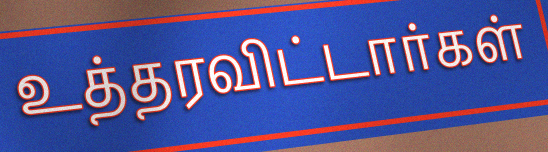
உத்தரவிட்டார்கள்